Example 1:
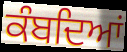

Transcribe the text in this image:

ਕੰਬਦਿਆਂ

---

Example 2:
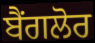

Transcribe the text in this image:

ਬੈਂਗਲੋਰ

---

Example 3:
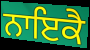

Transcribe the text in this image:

ਨਾਇਕੈ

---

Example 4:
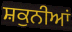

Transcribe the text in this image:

ਸ਼ਕੁਨੀਆਂ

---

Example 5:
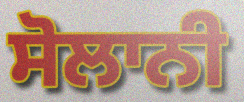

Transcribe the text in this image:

ਸੋਲਾਨੀ